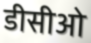
डीसीओ